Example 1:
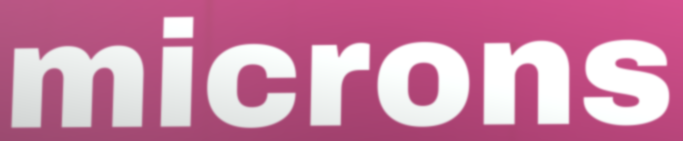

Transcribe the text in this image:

microns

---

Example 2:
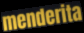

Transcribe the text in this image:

menderita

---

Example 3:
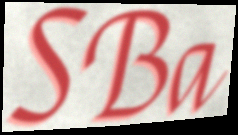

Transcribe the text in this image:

SBa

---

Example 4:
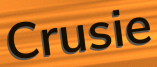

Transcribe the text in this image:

Crusie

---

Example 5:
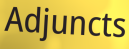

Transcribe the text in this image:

Adjuncts